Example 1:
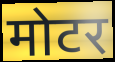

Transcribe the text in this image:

मोटर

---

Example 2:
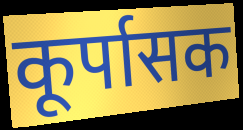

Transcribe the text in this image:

कूर्पासक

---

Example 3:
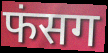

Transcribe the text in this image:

फंसग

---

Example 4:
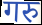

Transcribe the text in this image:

गरु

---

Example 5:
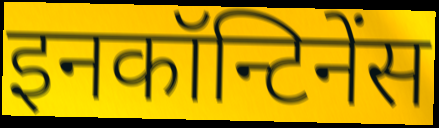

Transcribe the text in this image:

इनकॉन्टिनेंस